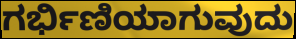
ಗರ್ಭಿಣಿಯಾಗುವುದು